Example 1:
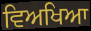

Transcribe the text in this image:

ਵਿਅਖਿਆ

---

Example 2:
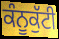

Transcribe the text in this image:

ਕੰਨੂਕੁੱਟੀ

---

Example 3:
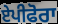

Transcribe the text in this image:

ਏਪੀਫੋਰਾ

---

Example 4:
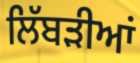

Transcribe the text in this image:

ਲਿੱਬੜੀਆਂ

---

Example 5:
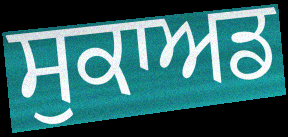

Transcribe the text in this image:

ਸੁਕਾਅਡ